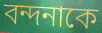
বন্দনাকে